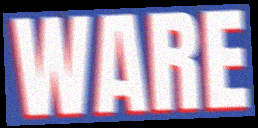
WARE